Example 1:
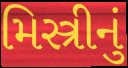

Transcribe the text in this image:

મિસ્ત્રીનું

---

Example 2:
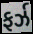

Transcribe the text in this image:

ફર્ઝ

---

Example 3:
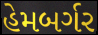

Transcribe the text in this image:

હેમબર્ગર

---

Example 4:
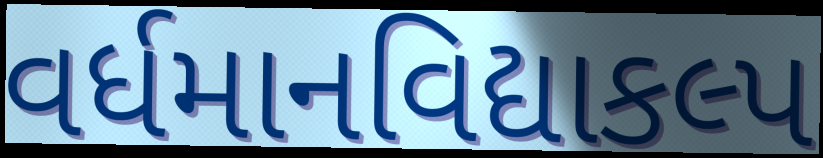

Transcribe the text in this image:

વર્ધમાનવિદ્યાકલ્પ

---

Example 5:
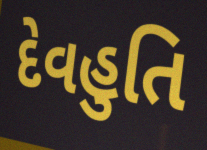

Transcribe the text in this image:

દેવહુતિ